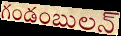
గండంబులన్